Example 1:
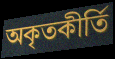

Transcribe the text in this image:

অকৃতকীর্তি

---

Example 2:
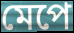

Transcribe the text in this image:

মেপে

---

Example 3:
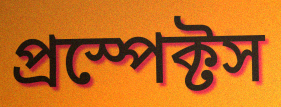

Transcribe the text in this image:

প্রস্পেক্টস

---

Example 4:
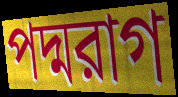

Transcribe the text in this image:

পদ্মরাগ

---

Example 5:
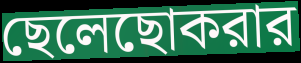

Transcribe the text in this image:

ছেলেছোকরার